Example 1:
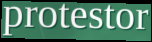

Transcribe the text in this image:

protestor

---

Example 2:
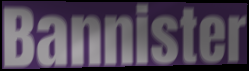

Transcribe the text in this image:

Bannister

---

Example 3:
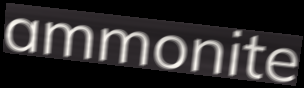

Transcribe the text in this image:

ammonite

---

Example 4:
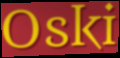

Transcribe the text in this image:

Oski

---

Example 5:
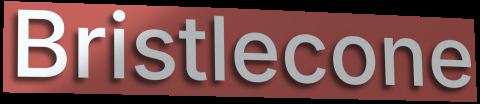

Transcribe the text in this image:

Bristlecone